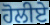
ਹੋਲੀਏ